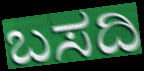
ಬಸದಿ